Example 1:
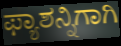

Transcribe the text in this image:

ಫ್ಯಾಶನ್ನಿಗಾಗಿ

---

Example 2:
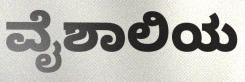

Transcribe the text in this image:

ವೈಶಾಲಿಯ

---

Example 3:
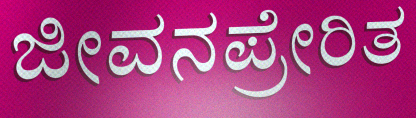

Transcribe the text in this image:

ಜೀವನಪ್ರೇರಿತ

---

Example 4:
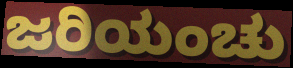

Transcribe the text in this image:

ಜರಿಯಂಚು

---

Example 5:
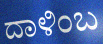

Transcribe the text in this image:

ದಾಳಿಂಬ